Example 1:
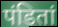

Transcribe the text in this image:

पंडितां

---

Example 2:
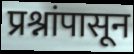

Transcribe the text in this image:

प्रश्नांपासून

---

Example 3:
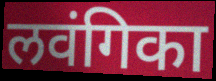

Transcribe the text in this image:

लवंगिका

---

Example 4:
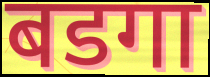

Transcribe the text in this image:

बडगा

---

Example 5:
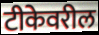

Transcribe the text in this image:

टीकेवरील